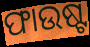
ଫାଉଷ୍ଟ